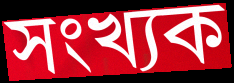
সংখ্যক